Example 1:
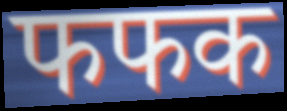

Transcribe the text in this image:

फफक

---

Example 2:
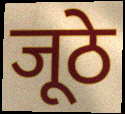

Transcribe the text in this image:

जूठे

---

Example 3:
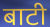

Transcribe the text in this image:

बाटी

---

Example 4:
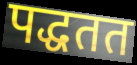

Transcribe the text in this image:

पद्धतत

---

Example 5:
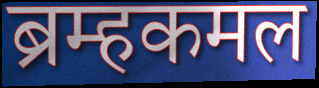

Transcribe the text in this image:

ब्रम्हकमल